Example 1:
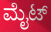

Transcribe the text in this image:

ಮೈಟ್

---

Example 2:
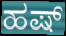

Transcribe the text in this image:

ಹಷ್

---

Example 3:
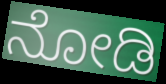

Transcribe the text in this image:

ನೋಡಿ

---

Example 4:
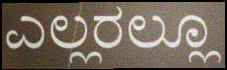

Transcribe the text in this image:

ಎಲ್ಲರಲ್ಲೂ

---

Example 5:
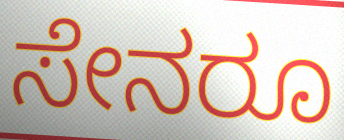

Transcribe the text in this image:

ಸೇನರೂ